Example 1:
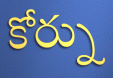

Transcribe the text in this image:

కోర్ను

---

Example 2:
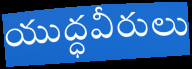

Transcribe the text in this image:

యుద్ధవీరులు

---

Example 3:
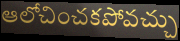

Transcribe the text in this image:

ఆలోచించకపోవచ్చు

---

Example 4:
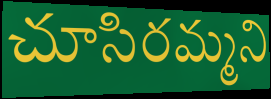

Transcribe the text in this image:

చూసిరమ్మని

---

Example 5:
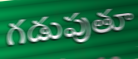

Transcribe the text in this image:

గడుపుతూ